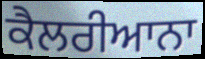
ਕੈਲਰੀਆਨਾ